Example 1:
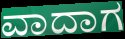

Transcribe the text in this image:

ವಾದಾಗ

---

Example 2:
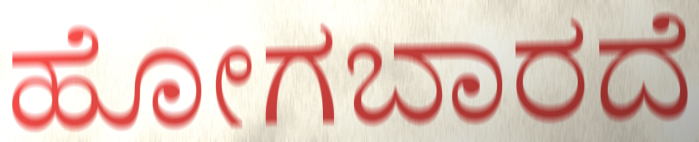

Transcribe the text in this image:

ಹೋಗಬಾರದೆ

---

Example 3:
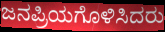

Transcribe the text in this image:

ಜನಪ್ರಿಯಗೊಳಿಸಿದರು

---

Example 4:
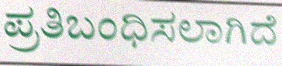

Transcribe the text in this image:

ಪ್ರತಿಬಂಧಿಸಲಾಗಿದೆ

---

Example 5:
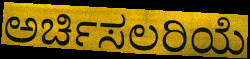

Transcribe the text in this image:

ಅರ್ಚಿಸಲರಿಯೆ